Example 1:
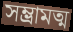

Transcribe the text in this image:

সম্ভ্রামত্ম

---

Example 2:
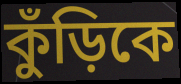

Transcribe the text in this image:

কুঁড়িকে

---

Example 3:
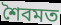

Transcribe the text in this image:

শৈবমত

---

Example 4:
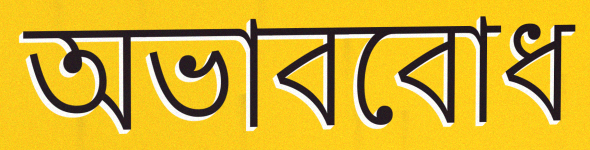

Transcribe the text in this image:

অভাববোধ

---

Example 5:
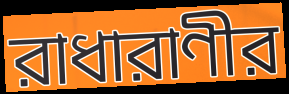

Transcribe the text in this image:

রাধারাণীর